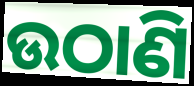
ଉଠାଣି